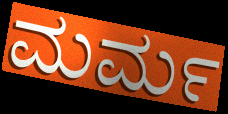
ಮರ್ಮ